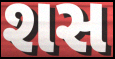
શસ